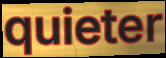
quieter